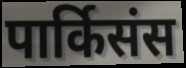
पार्किसंस